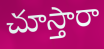
చూస్తారా